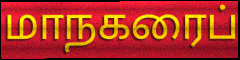
மாநகரைப்